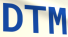
DTM